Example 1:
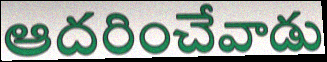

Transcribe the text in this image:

ఆదరించేవాడు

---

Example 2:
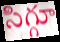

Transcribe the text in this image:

సిగ్గూ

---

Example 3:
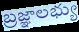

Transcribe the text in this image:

బ్రజ్ఞాలభ్యు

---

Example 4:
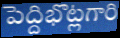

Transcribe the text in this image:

పెద్దిభొట్లగారి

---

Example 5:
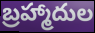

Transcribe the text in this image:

బ్రహ్మాదుల